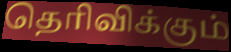
தெரிவிக்கும்